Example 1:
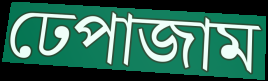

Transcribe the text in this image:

ঢেপাজাম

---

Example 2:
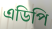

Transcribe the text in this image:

এডিপি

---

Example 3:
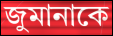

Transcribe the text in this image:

জুমানাকে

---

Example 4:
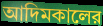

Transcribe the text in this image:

আদিমকালের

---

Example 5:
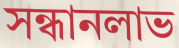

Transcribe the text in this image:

সন্ধানলাভ